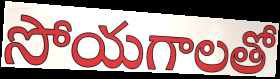
సోయగాలతో